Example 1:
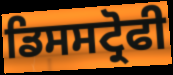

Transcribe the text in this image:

ਡਿਸਸਟ੍ਰੋਫੀ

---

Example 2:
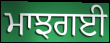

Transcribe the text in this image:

ਮਾਝਗਈ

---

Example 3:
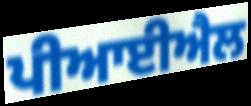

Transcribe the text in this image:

ਪੀਆਈਐਲ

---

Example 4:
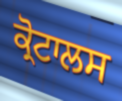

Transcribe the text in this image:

ਕ੍ਰੋਟਾਲਸ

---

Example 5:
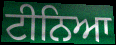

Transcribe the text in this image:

ਟੀਨਿਆ